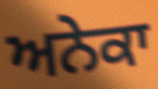
ਅਨੇਕਾ